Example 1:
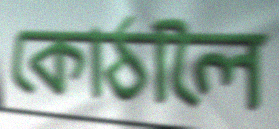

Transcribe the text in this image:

কোঠালৈ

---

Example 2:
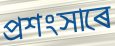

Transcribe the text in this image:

প্ৰশংসাৰে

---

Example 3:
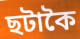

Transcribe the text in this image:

ছটাকৈ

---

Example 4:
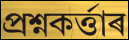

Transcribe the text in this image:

প্ৰশ্নকৰ্ত্তাৰ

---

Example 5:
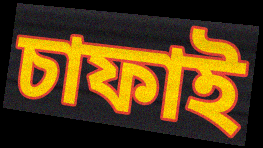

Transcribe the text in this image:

চাফাই